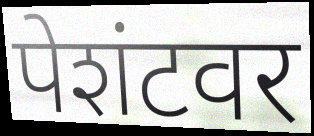
पेशंटवर